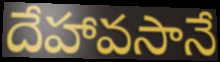
దేహావసానే